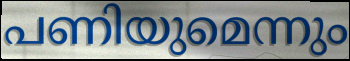
പണിയുമെന്നും